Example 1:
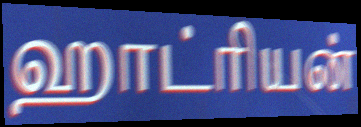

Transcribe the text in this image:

ஹாட்ரியன்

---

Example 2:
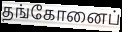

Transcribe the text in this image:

தங்கோனைப்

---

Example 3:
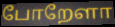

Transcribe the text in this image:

போறேளா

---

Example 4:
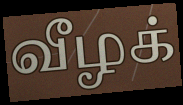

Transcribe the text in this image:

வீழக்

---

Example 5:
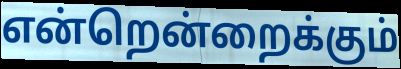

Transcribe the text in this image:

என்றென்றைக்கும்